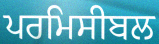
ਪਰਮਿਸੀਬਲ